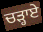
ਚੜ੍ਹਾਏ